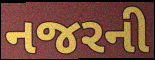
નજરની